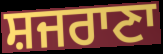
ਸ਼ਜਰਾਣਾ